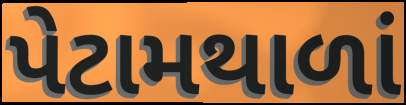
પેટામથાળાં